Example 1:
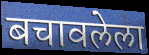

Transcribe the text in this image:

बचावलेला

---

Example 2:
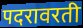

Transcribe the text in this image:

पदरावरती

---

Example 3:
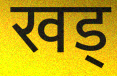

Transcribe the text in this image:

खड्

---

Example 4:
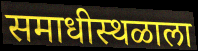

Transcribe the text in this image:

समाधीस्थळाला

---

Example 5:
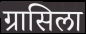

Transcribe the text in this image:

ग्रासिला